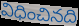
విధించినది